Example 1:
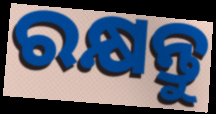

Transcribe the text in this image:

ରକ୍ଷନ୍ତୁ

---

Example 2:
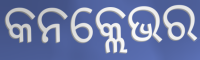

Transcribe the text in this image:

କନକ୍ଲେଭର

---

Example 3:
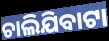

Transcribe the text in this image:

ଚାଲିଯିବାଟା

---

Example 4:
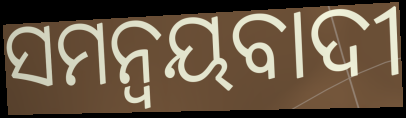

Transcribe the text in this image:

ସମନ୍ୱୟବାଦୀ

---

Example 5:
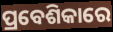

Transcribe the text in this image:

ପ୍ରବେଶିକାରେ